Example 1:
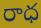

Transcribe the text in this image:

రాధ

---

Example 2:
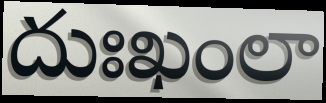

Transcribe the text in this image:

దుఃఖంలా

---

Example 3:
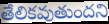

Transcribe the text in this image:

తేలికవుతుందని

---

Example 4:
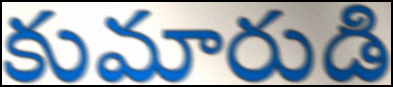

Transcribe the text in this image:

కుమారుడి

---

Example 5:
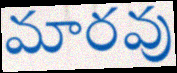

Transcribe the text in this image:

మారవు